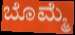
ಬೊಮ್ಮೆ